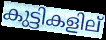
കുട്ടികളില്